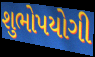
શુભોપયોગી